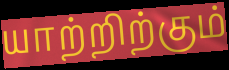
யாற்றிற்கும்